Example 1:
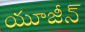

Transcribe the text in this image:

యూజీన్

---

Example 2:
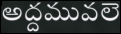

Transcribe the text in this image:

అద్దమువలె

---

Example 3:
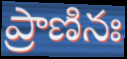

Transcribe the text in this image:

ప్రాణినః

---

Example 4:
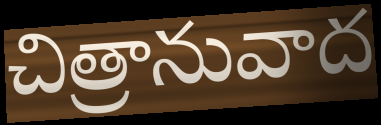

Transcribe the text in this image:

చిత్రానువాద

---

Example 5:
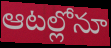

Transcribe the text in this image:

ఆటల్లోనూ